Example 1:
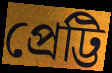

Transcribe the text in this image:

প্রেট্টি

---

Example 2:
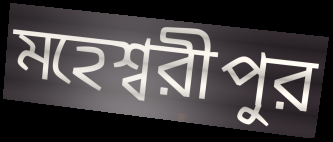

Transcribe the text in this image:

মহেশ্বরীপুর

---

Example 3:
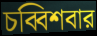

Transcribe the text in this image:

চব্বিশবার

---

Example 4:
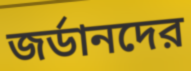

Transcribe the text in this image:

জর্ডানদের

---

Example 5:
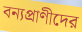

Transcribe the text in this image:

বন্যপ্রাণীদের